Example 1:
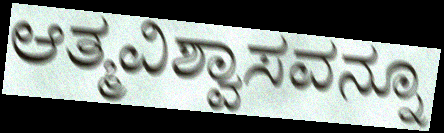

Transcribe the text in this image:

ಆತ್ಮವಿಶ್ವಾಸವನ್ನೂ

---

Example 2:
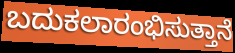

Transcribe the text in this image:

ಬದುಕಲಾರಂಭಿಸುತ್ತಾನೆ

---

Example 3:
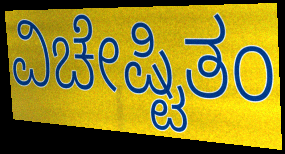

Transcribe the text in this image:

ವಿಚೇಷ್ಟಿತಂ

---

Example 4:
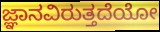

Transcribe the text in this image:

ಜ್ಞಾನವಿರುತ್ತದೆಯೋ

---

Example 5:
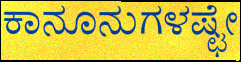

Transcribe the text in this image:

ಕಾನೂನುಗಳಷ್ಟೇ